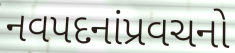
નવપદનાંપ્રવચનો